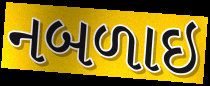
નબળાઇ